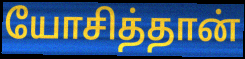
யோசித்தான்